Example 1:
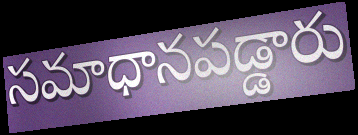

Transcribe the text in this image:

సమాధానపడ్డారు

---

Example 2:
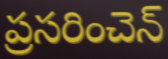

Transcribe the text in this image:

ప్రసరించెన్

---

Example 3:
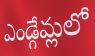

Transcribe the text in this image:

ఎండ్గేమ్లలో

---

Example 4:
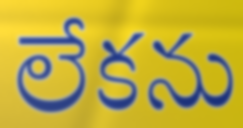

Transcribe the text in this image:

లేకను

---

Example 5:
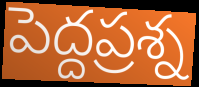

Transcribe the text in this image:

పెద్దప్రశ్న